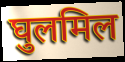
घुलमिल